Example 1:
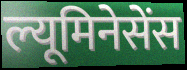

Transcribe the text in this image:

ल्यूमिनेसेंस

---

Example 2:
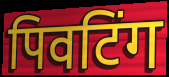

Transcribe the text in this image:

पिवटिंग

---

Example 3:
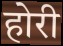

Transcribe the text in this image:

होरी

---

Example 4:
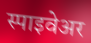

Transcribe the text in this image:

स्पाइवेअर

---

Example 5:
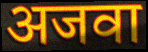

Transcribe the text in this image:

अजवा